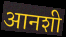
आनशी